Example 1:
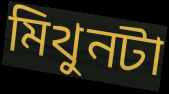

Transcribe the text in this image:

মিথুনটা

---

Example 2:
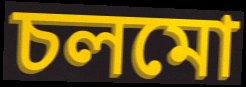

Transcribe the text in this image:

চলমো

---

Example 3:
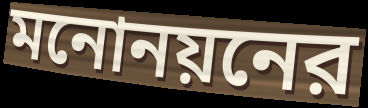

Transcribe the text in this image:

মনোনয়নের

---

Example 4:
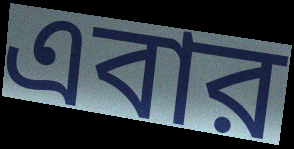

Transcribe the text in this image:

এবার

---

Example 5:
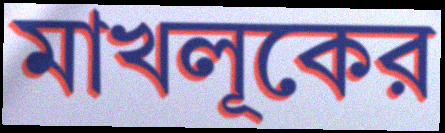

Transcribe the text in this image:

মাখলূকের